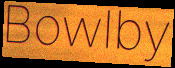
Bowlby